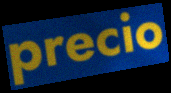
precio